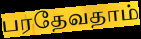
பரதேவதாம்